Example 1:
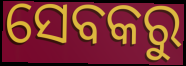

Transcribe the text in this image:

ସେବକରୁ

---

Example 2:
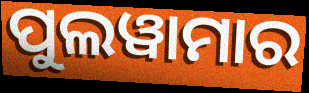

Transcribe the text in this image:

ପୁଲୱାମାର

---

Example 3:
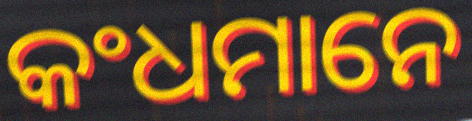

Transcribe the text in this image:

କଂଧମାନେ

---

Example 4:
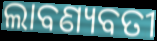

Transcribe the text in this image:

ଲାବଣ୍ୟବତୀ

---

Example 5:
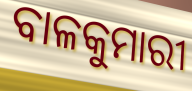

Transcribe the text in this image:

ବାଳକୁମାରୀ